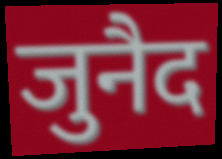
जुनैद